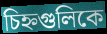
চিহ্নগুলিকে